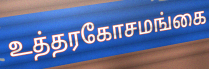
உத்தரகோசமங்கை